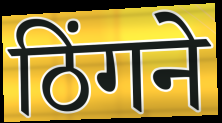
ठिंगने